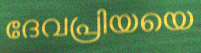
ദേവപ്രിയയെ